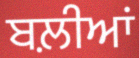
ਬਲ਼ੀਆਂ